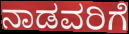
ನಾಡವರಿಗೆ